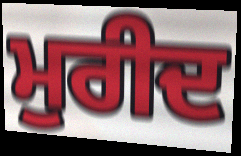
ਮੁਰੀਦ